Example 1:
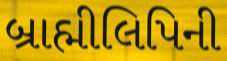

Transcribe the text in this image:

બ્રાહ્મીલિપિની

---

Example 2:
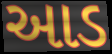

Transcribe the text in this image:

આડ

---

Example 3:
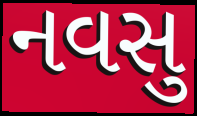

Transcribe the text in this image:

નવસુ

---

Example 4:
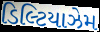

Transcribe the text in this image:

ડિલ્ટિયાઝેમ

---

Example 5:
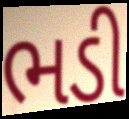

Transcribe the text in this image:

ભડી